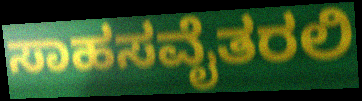
ಸಾಹಸವೈತರಲಿ